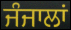
ਜੰਜਾਲਾਂ